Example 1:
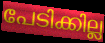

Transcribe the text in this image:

പേടിക്കില്ല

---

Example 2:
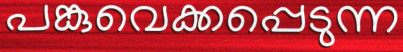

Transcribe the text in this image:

പങ്കുവെക്കപ്പെടുന്ന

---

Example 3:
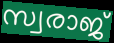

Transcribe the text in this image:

സ്വരാജ്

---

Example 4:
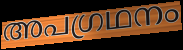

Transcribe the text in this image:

അപഗ്രഥനം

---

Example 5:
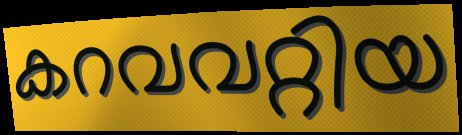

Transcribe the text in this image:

കറവവറ്റിയ